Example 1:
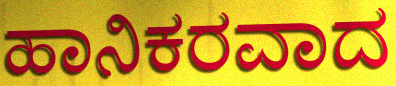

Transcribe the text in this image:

ಹಾನಿಕರವಾದ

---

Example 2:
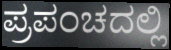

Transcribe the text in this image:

ಪ್ರಪಂಚದಲ್ಲಿ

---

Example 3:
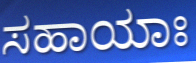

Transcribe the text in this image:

ಸಹಾಯಾಃ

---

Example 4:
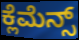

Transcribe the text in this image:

ಕ್ಲೆಮೆನ್ಸ್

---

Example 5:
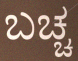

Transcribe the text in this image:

ಬಚ್ಚ